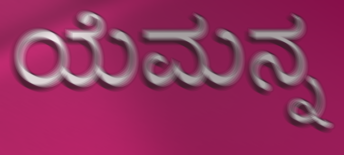
ಯೆಮನ್ನ